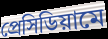
প্রেসিডিয়ামে